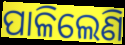
ପାଳିଲେଣି